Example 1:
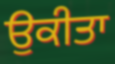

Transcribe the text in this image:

ਉਕੀਤਾ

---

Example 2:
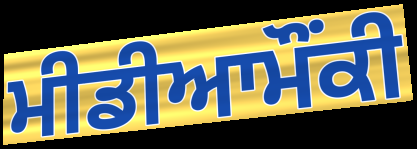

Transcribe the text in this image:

ਮੀਡੀਆਮੌਂਕੀ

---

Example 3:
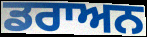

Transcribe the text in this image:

ਡਰਾਅਨ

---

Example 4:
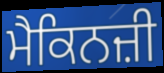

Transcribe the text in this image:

ਮੈਕਿਨਜ਼ੀ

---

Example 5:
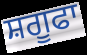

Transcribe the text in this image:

ਸ਼ਗੂਫਾ